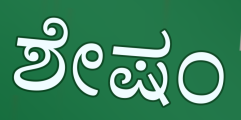
ಶೇಷಂ